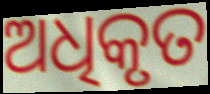
ଅଧିକୃତ